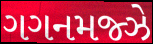
ગગનમજ્ઝે